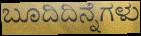
ಬೂದಿದಿನ್ನೆಗಳು